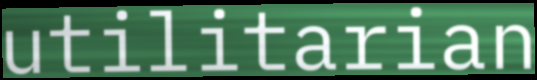
utilitarian